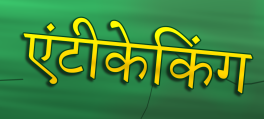
एंटीकेकिंग